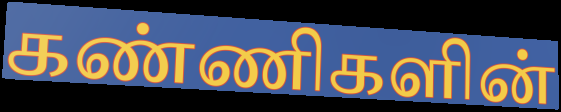
கண்ணிகளின்